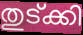
തുട്ക്കി